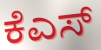
ಕೆಎಸ್